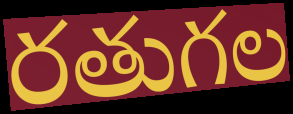
రతుగల